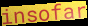
insofar